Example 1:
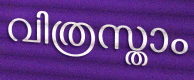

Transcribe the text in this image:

വിത്രസ്താം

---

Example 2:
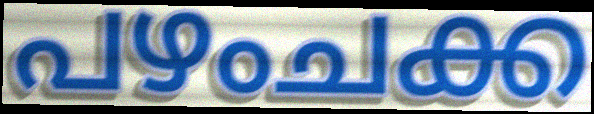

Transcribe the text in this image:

പഴംചക്ക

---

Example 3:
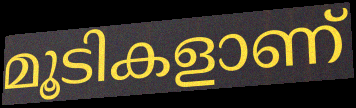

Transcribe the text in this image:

മൂടികളാണ്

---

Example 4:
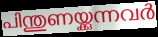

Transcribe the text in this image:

പിന്തുണയ്ക്കുന്നവർ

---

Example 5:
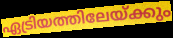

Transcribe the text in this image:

ഏട്രിയത്തിലേയ്ക്കും